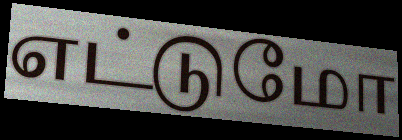
எட்டுமோ